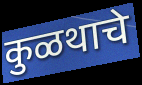
कुळथाचे